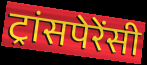
ट्रांसपेरेंसी